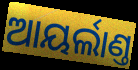
ଆୟର୍ଲାଣ୍ତ